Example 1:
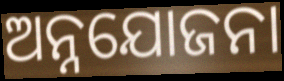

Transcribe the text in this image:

ଅନ୍ନଯୋଜନା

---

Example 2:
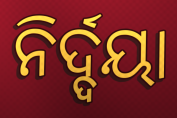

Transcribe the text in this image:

ନିର୍ଦ୍ଦୟା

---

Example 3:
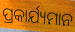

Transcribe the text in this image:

ପ୍ରକାର୍ଯ୍ୟମାନ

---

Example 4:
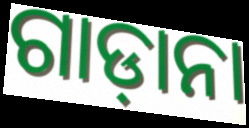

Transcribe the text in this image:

ଗାଡ଼ାନା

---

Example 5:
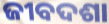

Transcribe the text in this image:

ଜୀବଦଶା